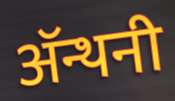
ॲन्थनी